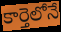
కార్తెలోనే